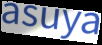
asuya